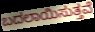
ಬದಲಾಯಿಸುತ್ತವೆ